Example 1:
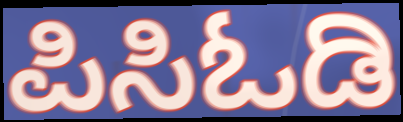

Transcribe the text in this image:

ಪಿಸಿಓಡಿ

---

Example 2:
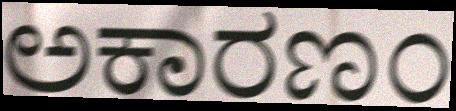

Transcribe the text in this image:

ಅಕಾರಣಂ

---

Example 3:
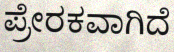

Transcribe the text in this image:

ಪ್ರೇರಕವಾಗಿದೆ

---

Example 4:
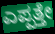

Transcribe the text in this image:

ಎಪ್ಪತ್ತೇ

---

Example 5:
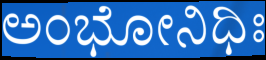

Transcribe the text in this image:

ಅಂಭೋನಿಧಿಃ